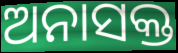
ଅନାସକ୍ତ